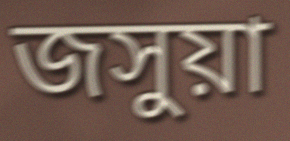
জসুয়া